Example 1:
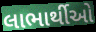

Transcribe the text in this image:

લાભાર્થીઓ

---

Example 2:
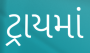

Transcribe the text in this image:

ટ્રાયમાં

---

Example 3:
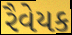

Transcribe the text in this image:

રૈવેયક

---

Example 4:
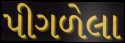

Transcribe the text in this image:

પીગળેલા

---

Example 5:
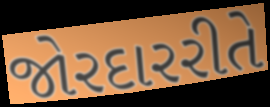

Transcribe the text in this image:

જોરદારરીતે